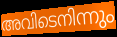
അവിടെനിന്നും